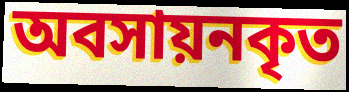
অবসায়নকৃত